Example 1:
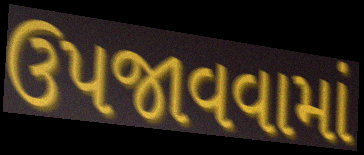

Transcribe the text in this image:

ઉપજાવવામાં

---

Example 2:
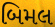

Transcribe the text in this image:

બિમલ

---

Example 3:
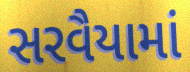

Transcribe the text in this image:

સરવૈયામાં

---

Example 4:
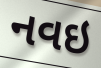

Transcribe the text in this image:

નવઇ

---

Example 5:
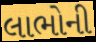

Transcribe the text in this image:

લાભોની